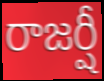
రాజర్షీ